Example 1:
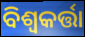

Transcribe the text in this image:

ବିଶ୍ୱକର୍ତ୍ତା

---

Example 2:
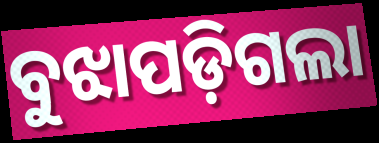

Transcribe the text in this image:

ବୁଝାପଡ଼ିଗଲା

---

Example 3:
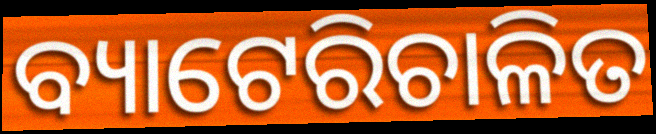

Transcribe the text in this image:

ବ୍ୟାଟେରିଚାଳିତ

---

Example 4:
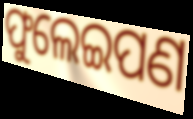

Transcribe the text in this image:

ଫୁଲେଇପଣ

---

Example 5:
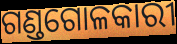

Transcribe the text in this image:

ଗଣ୍ଡଗୋଳକାରୀ